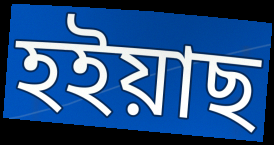
হইয়াছ